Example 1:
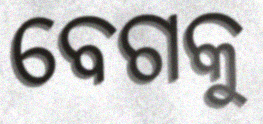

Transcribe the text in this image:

ବେଗକୁ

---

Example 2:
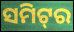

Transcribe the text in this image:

ସମିଟ୍‌ର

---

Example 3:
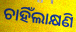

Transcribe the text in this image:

ଚାହିଁଲାକ୍ଷଣି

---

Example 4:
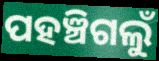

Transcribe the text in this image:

ପହଞ୍ଚିଗଲୁଁ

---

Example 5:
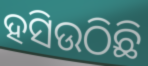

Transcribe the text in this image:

ହସିଉଠିଛି